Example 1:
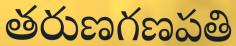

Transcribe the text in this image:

తరుణగణపతి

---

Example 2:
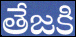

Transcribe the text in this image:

తేజకి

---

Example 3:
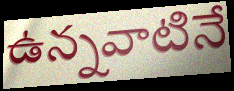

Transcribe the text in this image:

ఉన్నవాటినే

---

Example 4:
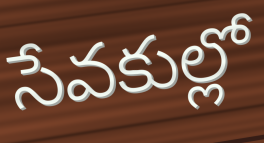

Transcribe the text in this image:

సేవకుల్లో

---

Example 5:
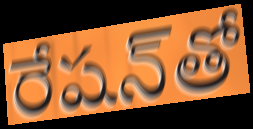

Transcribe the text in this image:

రేషన్‌తో